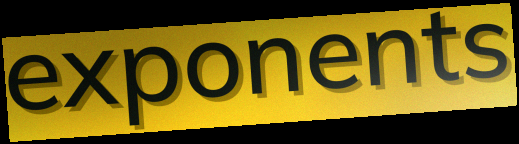
exponents